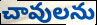
చావులను